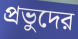
প্রভুদের